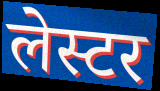
लेस्टर